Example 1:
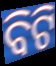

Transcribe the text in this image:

ବିଟି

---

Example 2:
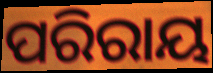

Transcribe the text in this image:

ପରିରାୟ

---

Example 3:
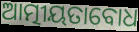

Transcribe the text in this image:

ଆତ୍ମୀୟତାବୋଧ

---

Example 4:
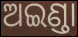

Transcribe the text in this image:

ଅଇଣ୍ଡା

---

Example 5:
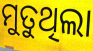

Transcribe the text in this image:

ମୁତୁଥିଲା